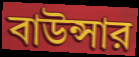
বাউন্সার